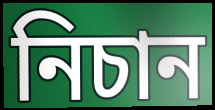
নিচান